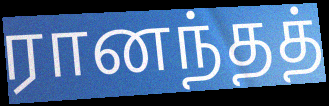
ரானந்தத்